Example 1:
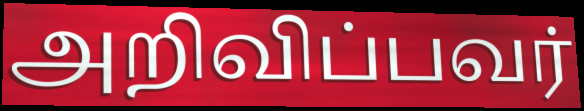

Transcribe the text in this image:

அறிவிப்பவர்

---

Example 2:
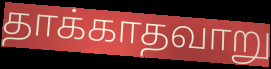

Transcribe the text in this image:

தாக்காதவாறு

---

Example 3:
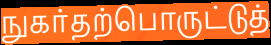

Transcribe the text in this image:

நுகர்தற்பொருட்டுத்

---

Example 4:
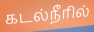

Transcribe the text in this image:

கடல்நீரில்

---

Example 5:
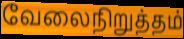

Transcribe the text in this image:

வேலைநிறுத்தம்